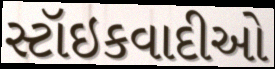
સ્ટૉઇકવાદીઓ